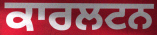
ਕਾਰਲਟਨ